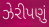
ઝેરીપણું